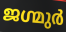
ജഗ്മുർ